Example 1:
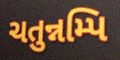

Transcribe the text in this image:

ચતુન્નમ્પિ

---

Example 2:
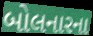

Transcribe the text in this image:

બોલનારના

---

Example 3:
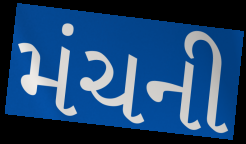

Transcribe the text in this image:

મંચની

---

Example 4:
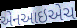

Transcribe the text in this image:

એનઆઇએચ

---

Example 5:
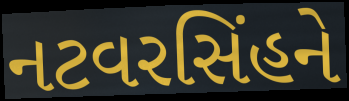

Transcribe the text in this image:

નટવરસિંહને